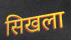
सिखला